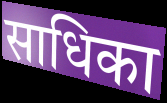
साधिका